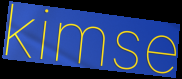
kimse